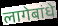
लागेबांधे